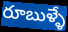
రూబుళ్ళే